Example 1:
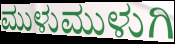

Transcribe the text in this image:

ಮುಳುಮುಳುಗಿ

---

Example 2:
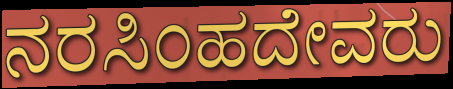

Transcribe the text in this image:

ನರಸಿಂಹದೇವರು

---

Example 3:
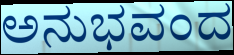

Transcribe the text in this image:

ಅನುಭವಂದ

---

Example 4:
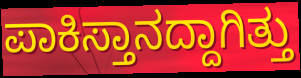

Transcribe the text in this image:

ಪಾಕಿಸ್ತಾನದ್ದಾಗಿತ್ತು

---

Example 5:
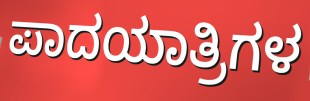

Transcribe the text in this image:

ಪಾದಯಾತ್ರಿಗಳ